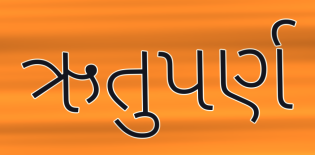
ઋતુપર્ણ